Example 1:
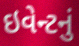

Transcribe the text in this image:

ઇવેન્ટનું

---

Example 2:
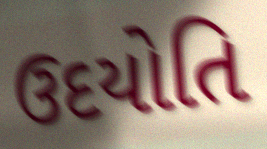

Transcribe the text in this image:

ઉદયોતિ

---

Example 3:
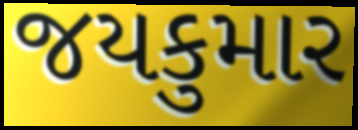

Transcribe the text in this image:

જયકુમાર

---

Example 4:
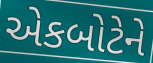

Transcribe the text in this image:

એકબોટેને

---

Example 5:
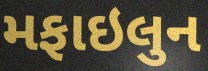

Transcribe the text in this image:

મફાઇલુન